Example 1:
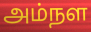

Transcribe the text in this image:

அம்நள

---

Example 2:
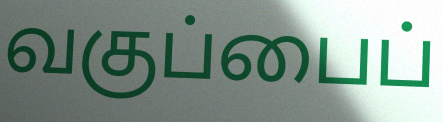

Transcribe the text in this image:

வகுப்பைப்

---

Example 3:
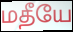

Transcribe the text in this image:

மதீயே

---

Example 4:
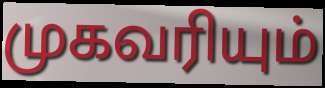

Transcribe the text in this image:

முகவரியும்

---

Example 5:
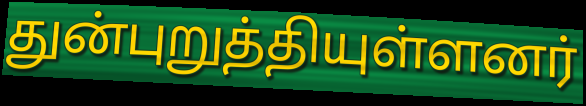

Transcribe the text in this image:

துன்புறுத்தியுள்ளனர்